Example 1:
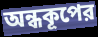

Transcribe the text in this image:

অন্ধকূপের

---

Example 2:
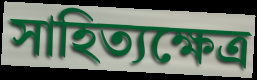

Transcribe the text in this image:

সাহিত্যক্ষেত্র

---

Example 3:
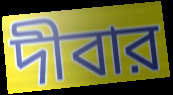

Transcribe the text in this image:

দীবার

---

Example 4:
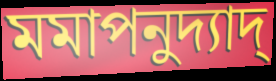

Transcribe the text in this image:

মমাপনুদ্যাদ্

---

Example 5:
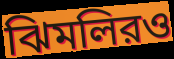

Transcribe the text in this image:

ঝিমলিরও